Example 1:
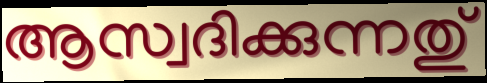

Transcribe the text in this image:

ആസ്വദിക്കുന്നതു്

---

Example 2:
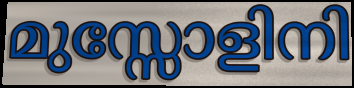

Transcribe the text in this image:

മുസ്സോളിനി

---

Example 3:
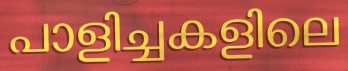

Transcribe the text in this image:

പാളിച്ചകളിലെ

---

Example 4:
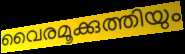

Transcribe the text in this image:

വൈരമൂക്കുത്തിയും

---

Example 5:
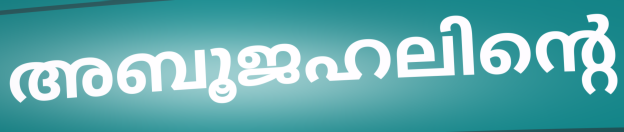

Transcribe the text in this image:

അബൂജഹലിന്റെ